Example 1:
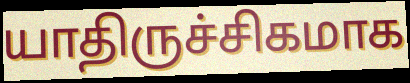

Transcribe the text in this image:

யாதிருச்சிகமாக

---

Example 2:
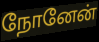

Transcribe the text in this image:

நோனேன்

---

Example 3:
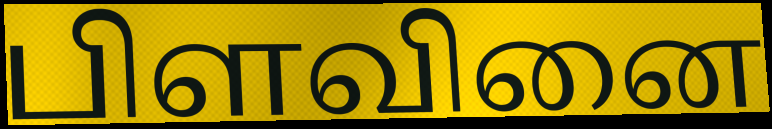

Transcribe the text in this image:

பிளவினை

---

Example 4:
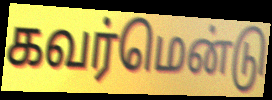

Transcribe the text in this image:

கவர்மென்டு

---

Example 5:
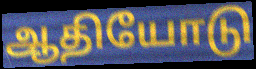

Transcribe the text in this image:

ஆதியோடு